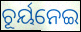
ଚୂର୍ୟନେଇ